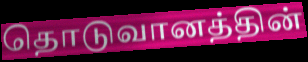
தொடுவானத்தின்